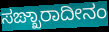
ಸಙ್ಖಾರಾದೀನಂ